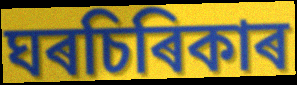
ঘৰচিৰিকাৰ